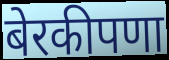
बेरकीपणा